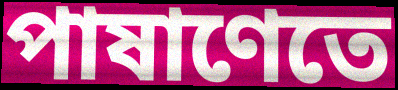
পাষাণেতে